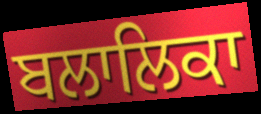
ਬਲਾਲਿਕਾ